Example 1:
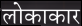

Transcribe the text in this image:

लोकाकार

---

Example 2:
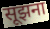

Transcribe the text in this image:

सूझना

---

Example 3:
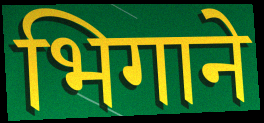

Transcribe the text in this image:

भिगाने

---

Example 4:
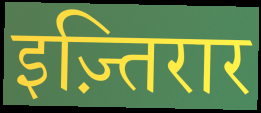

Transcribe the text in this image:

इज़्तिरार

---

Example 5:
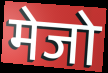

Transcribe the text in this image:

मेजो